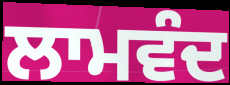
ਲਾਮਵੰਦ